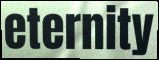
eternity